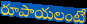
రూపాయలంటే